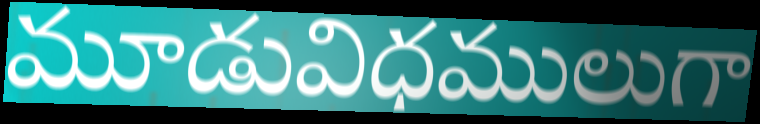
మూడువిధములుగా